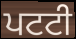
ਪਟਟੀ